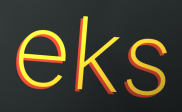
eks